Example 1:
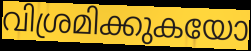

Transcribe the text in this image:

വിശ്രമിക്കുകയോ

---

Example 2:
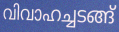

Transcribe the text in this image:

വിവാഹച്ചടങ്ങ്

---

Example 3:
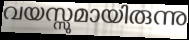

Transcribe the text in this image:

വയസ്സുമായിരുന്നു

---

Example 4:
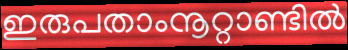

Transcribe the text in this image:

ഇരുപതാംനൂറ്റാണ്ടിൽ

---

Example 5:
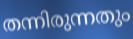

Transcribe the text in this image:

തന്നിരുന്നതും